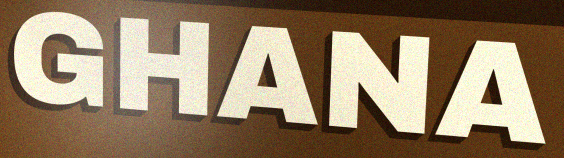
GHANA